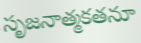
సృజనాత్మకతనూ